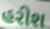
હરીશ